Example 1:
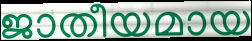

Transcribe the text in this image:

ജാതീയമായ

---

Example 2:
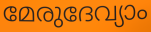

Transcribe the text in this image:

മേരുദേവ്യാം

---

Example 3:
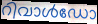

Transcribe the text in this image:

റിവാൾഡോ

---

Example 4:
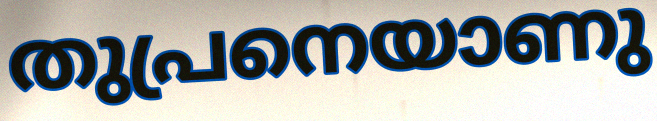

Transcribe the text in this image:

തുപ്രനെയാണു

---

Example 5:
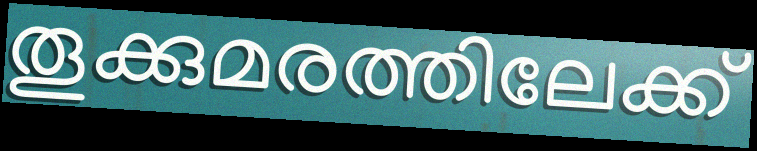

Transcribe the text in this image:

തൂക്കുമരത്തിലേക്ക്